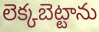
లెక్కబెట్టాను